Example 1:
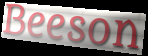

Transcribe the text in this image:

Beeson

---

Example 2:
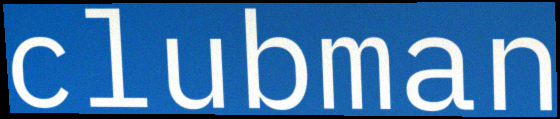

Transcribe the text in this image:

clubman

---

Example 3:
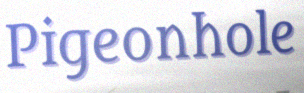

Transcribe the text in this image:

Pigeonhole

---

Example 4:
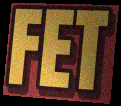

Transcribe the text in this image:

FET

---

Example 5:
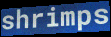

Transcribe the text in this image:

shrimps